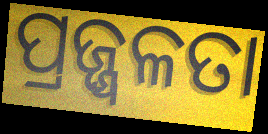
ପ୍ରଜ୍ଜ୍ୱଳତା